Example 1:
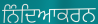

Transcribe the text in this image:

ਨਿੰਦਿਆਕਰਨ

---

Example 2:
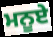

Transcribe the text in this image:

ਮਨੂਏ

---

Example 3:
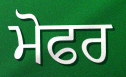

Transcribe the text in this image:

ਮੋਫਰ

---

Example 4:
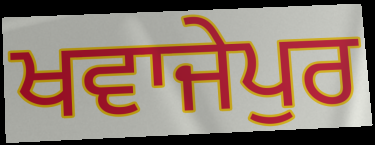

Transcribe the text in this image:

ਖਵਾਜੇਪੁਰ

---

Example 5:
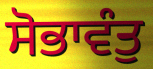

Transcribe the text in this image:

ਸੋਭਾਵੰਤੁ